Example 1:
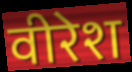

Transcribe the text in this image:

वीरेश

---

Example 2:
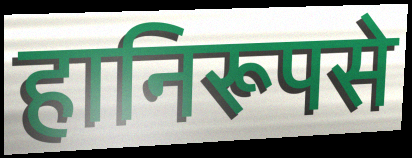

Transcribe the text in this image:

हानिरूपसे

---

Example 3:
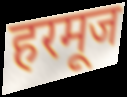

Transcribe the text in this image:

हरमूज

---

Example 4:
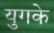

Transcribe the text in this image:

युगके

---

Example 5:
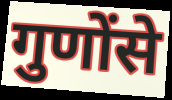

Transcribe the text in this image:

गुणोंसे